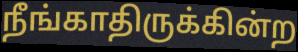
நீங்காதிருக்கின்ற